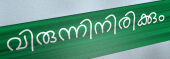
വിരുന്നിനിരിക്കും